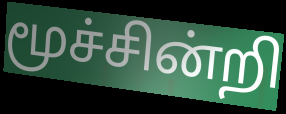
மூச்சின்றி